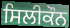
ਸਿਲੀਕੌਨ